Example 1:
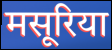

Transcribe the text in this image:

मसूरिया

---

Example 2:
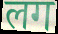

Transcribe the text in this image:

लग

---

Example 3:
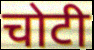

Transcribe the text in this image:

चोटी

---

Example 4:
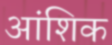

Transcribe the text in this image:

आंशिक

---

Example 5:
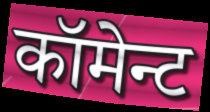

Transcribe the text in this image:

कॉमेन्ट